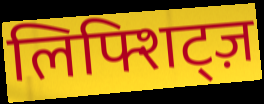
लिफ्शिट्ज़